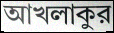
আখলাকুর